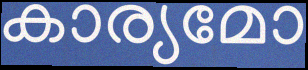
കാര്യമോ